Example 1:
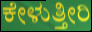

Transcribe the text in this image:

ಕೇಳುತ್ತೀರಿ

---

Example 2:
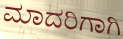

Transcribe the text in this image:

ಮಾದರಿಗಾಗಿ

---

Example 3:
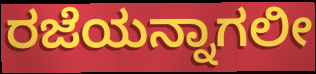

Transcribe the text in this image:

ರಜೆಯನ್ನಾಗಲೀ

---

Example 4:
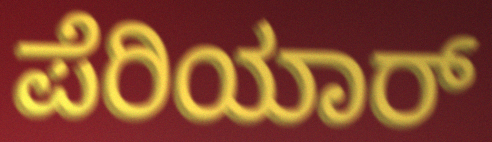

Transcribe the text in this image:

ಪೆರಿಯಾರ್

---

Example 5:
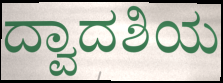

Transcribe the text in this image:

ದ್ವಾದಶಿಯ